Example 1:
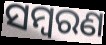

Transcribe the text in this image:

ସମ୍ଵରଣ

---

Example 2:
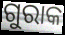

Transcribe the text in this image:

ଗୁରାକ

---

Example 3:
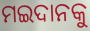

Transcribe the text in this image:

ମଇଦାନକୁ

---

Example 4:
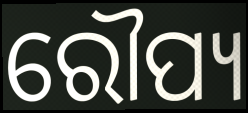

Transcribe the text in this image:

ରୌପ୍ୟ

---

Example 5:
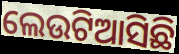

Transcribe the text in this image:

ଲେଉଟିଆସିଛି